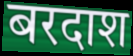
बरदाश